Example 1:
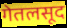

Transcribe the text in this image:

गेतलसूद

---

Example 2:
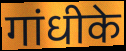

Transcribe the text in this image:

गांधीके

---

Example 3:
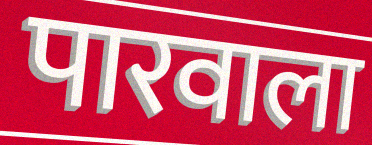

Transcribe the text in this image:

पारवाला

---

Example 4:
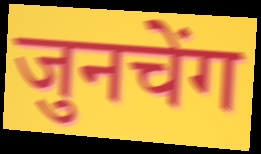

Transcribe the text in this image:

जुनचेंग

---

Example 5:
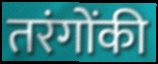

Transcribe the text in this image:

तरंगोंकी